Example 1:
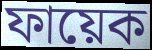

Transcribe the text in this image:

ফায়েক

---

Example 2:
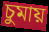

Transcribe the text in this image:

চুমায়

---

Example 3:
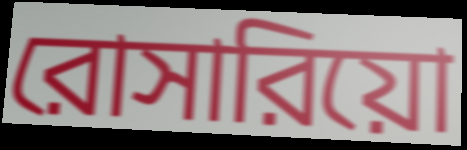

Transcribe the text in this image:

রোসারিয়ো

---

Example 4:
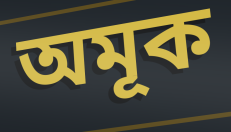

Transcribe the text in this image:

অমূক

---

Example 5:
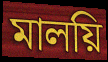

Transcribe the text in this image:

মালয়ি